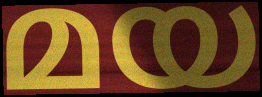
മയ